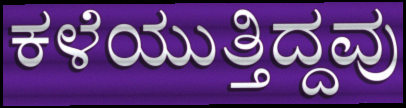
ಕಳೆಯುತ್ತಿದ್ದವು